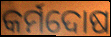
କର୍ମଦୋଷ